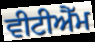
ਵੀਟੀਐੱਮ